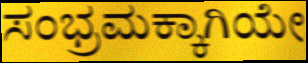
ಸಂಭ್ರಮಕ್ಕಾಗಿಯೇ